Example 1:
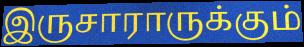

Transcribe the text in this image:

இருசாராருக்கும்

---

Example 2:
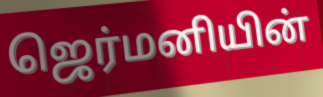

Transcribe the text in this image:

ஜெர்மனியின்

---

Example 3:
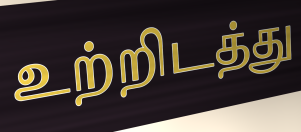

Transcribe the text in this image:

உற்றிடத்து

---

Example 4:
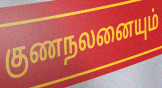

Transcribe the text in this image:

குணநலனையும்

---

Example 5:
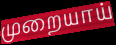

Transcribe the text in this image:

முறையாய்